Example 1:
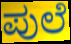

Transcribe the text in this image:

ಪುಲೆ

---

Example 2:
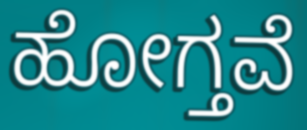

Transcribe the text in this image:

ಹೋಗ್ತವೆ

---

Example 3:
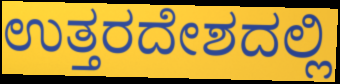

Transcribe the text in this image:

ಉತ್ತರದೇಶದಲ್ಲಿ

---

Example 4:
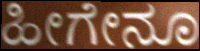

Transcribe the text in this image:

ಹೀಗೇನೂ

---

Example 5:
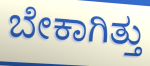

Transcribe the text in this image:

ಬೇಕಾಗಿತ್ತು